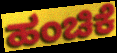
ಹಂಚಿಕೆ